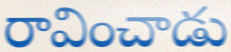
రావించాడు